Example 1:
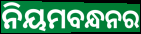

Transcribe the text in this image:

ନିୟମବନ୍ଧନର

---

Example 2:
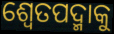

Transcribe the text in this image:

ଶ୍ୱେତପଦ୍ମାକୁ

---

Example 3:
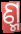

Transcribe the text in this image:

ଣ୍ମ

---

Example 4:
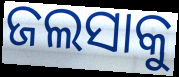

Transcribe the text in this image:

ଜଲସାକୁ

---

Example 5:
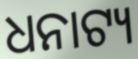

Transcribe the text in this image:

ଧନାଟ୍ୟ